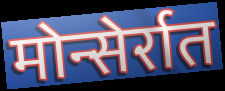
मोन्सेर्रात